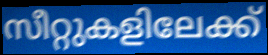
സീറ്റുകളിലേക്ക്